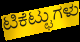
ಟಿಕೆಟ್ಟುಗಳು